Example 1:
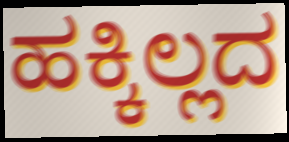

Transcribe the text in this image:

ಹಕ್ಕಿಲ್ಲದ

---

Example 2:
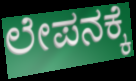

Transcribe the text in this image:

ಲೇಪನಕ್ಕೆ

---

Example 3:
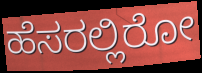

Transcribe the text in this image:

ಹೆಸರಲ್ಲಿರೋ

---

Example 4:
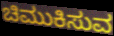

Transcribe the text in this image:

ಚಿಮುಕಿಸುವ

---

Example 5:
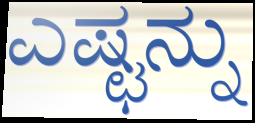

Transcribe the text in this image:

ಎಷ್ಟನ್ನು